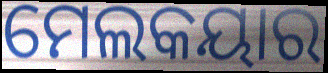
ମେଲକୟାର